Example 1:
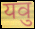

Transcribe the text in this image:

यवु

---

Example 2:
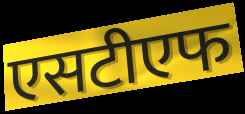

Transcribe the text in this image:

एसटीएफ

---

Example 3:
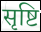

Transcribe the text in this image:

सृष्टि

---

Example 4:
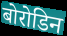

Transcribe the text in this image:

बोरोडिन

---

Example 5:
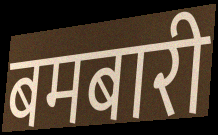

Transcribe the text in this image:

बमबारी